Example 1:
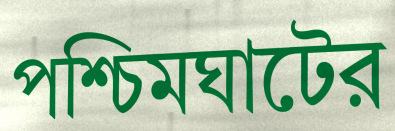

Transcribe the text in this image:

পশ্চিমঘাটের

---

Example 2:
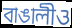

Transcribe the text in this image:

বাঙালীও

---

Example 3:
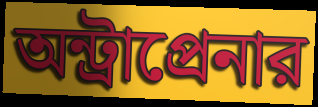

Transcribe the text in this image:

অন্ট্রাপ্রেনার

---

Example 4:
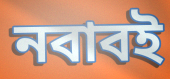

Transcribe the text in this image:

নবাবই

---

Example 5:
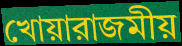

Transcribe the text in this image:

খোয়ারাজমীয়